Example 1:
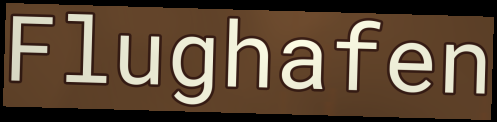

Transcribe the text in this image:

Flughafen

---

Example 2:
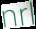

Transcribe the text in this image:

nrl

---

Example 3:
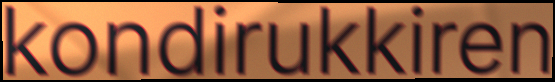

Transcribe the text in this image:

kondirukkiren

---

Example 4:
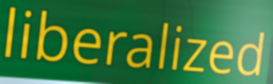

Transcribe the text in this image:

liberalized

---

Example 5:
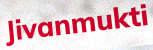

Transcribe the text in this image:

Jivanmukti